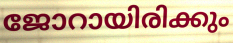
ജോറായിരിക്കും